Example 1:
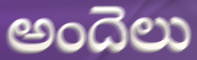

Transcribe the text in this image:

అందెలు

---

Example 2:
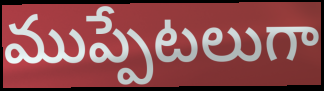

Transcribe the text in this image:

ముప్పేటలుగా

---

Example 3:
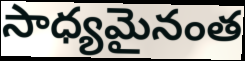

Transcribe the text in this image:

సాధ్యమైనంత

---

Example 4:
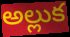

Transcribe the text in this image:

అల్లుక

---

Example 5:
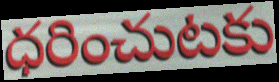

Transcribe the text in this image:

ధరించుటకు